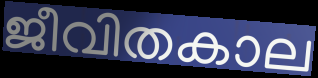
ജീവിതകാല